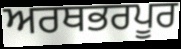
ਅਰਥਭਰਪੂਰ